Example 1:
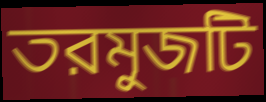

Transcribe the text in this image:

তরমুজটি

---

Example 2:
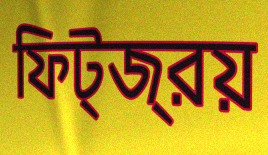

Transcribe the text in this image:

ফিট্‌জ্‌রয়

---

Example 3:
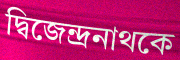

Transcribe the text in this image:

দ্বিজেন্দ্রনাথকে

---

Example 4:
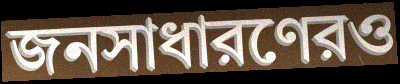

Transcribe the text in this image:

জনসাধারণেরও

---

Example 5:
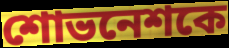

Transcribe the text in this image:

শোভনেশকে